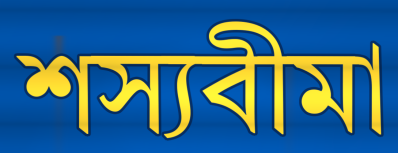
শস্যবীমা